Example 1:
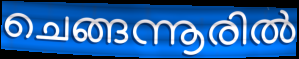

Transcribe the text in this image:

ചെങ്ങന്നൂരിൽ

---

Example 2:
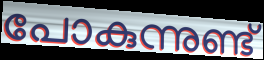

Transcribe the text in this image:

പോകുന്നുണ്ട്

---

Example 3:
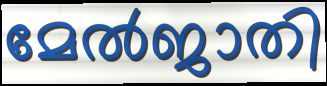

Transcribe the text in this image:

മേൽജാതി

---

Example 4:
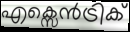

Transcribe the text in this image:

എക്സെൻട്രിക്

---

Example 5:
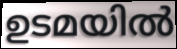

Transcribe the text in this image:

ഉടമയിൽ